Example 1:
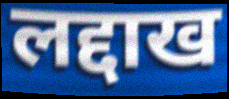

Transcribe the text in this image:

लद्दाख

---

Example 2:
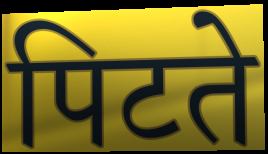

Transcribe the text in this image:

पिटते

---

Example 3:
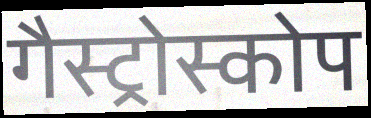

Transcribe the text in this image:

गैस्ट्रोस्कोप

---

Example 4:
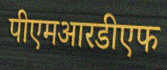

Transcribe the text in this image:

पीएमआरडीएफ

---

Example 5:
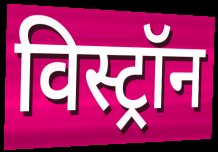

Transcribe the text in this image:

विस्ट्रॉन